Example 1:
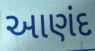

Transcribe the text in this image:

આણંદ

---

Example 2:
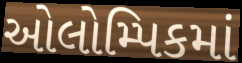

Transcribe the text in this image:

ઓલોમ્પિકમાં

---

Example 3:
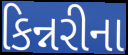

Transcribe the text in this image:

કિન્નરીના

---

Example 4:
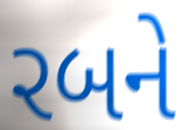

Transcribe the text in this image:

રબને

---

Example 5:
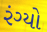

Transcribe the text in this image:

રંગ્યો